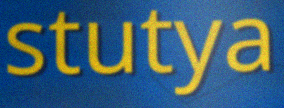
stutya